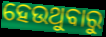
ହେଉଥୁବାରୁ